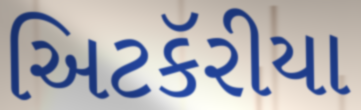
અિટકૅરીયા